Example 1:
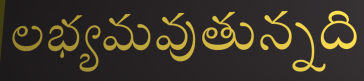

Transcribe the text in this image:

లభ్యమవుతున్నది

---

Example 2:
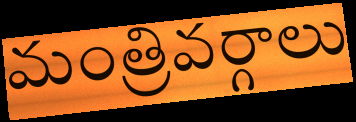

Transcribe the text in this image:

మంత్రివర్గాలు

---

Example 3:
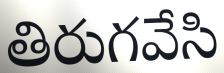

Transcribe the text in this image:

తిరుగవేసి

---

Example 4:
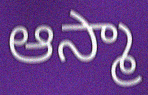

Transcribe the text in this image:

ఆస్మా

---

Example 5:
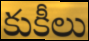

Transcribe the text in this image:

కుకీలు